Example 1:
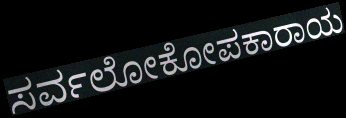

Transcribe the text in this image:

ಸರ್ವಲೋಕೋಪಕಾರಾಯ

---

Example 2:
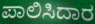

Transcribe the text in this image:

ಪಾಲಿಸಿದಾರ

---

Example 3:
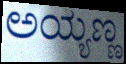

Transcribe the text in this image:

ಅಯ್ಯಣ್ಣ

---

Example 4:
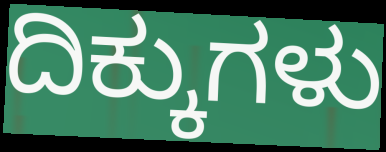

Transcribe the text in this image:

ದಿಕ್ಕುಗಳು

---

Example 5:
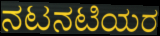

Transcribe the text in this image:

ನಟನಟಿಯರ